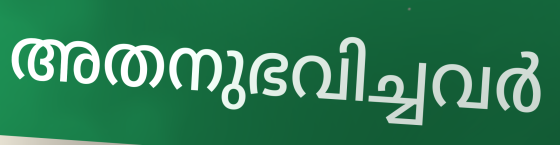
അതനുഭവിച്ചവർ